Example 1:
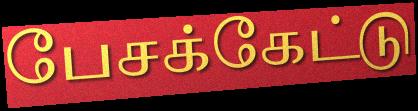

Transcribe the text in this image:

பேசக்கேட்டு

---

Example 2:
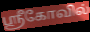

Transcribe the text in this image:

ஸ்ரீகோவில்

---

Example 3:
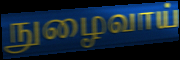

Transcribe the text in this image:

நுழைவாய்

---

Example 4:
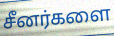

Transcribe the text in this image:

சீனர்களை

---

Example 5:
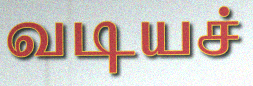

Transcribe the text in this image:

வடியச்